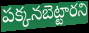
పక్కనబెట్టారని